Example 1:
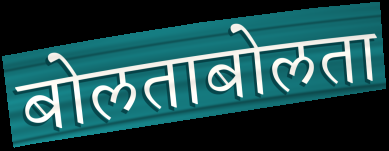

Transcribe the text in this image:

बोलताबोलता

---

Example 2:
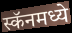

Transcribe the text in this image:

स्कॅनमध्ये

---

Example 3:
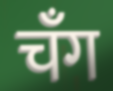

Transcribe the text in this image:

चँग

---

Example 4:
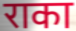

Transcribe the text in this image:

राका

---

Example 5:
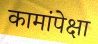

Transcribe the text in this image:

कामांपेक्षा